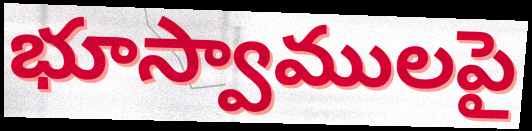
భూస్వాములపై